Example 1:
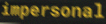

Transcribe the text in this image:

impersonal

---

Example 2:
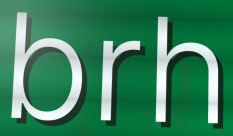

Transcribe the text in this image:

brh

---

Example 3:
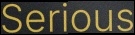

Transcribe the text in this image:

Serious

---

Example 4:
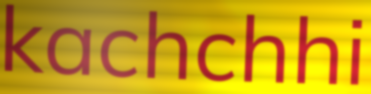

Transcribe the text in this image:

kachchhi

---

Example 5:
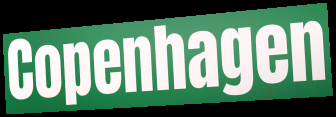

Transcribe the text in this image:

Copenhagen